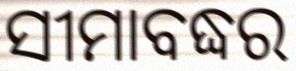
ସୀମାବଦ୍ଧର